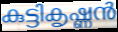
കുട്ടികൃഷ്ണൻ